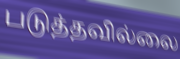
படுத்தவில்லை